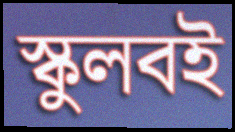
স্কুলবই